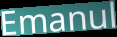
Emanul